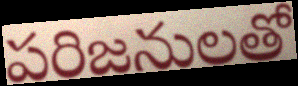
పరిజనులతో